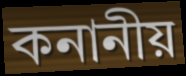
কনানীয়